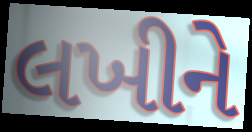
લખીને